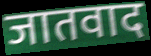
जातवाद